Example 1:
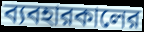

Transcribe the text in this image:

ব্যবহারকালের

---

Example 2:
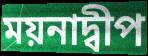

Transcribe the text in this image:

ময়নাদ্বীপ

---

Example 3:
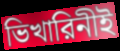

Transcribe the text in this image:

ভিখারিনীই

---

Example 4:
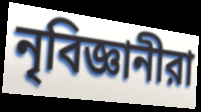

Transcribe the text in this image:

নৃবিজ্ঞানীরা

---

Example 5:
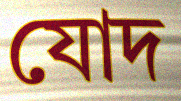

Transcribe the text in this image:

যোদ